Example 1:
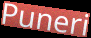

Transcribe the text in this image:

Puneri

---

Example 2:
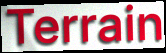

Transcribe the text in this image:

Terrain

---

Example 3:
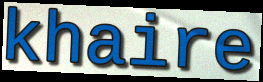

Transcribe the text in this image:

khaire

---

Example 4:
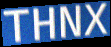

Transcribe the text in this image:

THNX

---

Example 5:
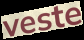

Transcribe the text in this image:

veste